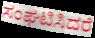
ಸಂಘಟಿಸಿದರೆ